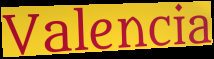
Valencia